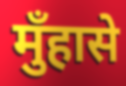
मुँहासे